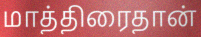
மாத்திரைதான்